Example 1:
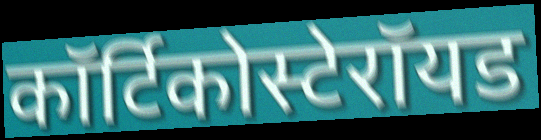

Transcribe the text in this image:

कॉर्टिकोस्टेरॉयड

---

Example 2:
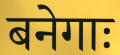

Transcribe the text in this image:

बनेगाः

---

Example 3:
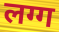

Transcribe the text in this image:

लग्ग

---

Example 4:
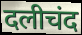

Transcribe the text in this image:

दलीचंद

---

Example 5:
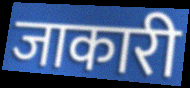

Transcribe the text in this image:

जाकारी